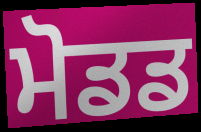
ਮੋਡਡ